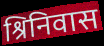
श्रिनिवास